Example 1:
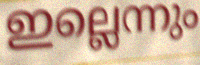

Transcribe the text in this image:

ഇല്ലെന്നും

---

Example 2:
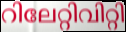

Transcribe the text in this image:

റിലേറ്റിവിറ്റി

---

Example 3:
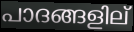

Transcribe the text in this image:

പാദങ്ങളില്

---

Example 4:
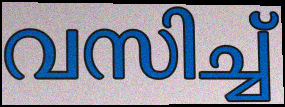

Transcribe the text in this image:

വസിച്ച്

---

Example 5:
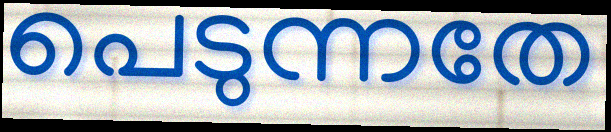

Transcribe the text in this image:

പെടുന്നതേ